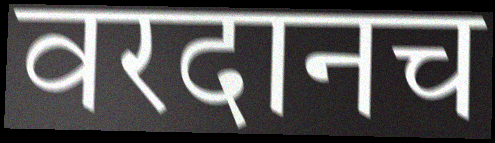
वरदानच